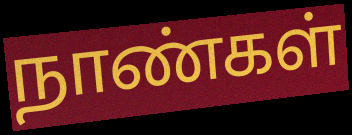
நாண்கள்